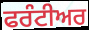
ਫਰੰਟੀਅਰ